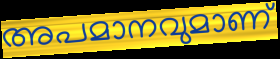
അപമാനവുമാണ്